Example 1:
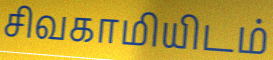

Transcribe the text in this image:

சிவகாமியிடம்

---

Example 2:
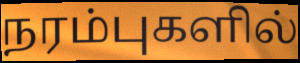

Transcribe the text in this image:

நரம்புகளில்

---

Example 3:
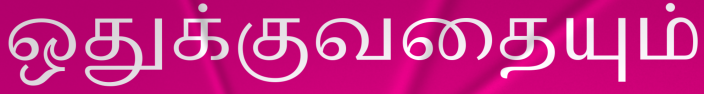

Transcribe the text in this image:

ஒதுக்குவதையும்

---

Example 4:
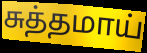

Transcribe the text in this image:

சுத்தமாய்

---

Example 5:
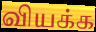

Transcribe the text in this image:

வியக்க